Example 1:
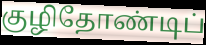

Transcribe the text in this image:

குழிதோண்டிப்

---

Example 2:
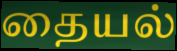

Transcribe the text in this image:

தையல்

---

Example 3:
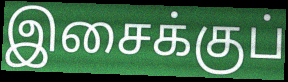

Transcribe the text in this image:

இசைக்குப்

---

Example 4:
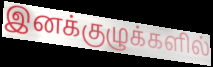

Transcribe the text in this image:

இனக்குழுக்களில்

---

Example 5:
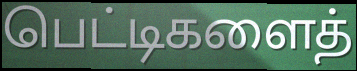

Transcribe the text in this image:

பெட்டிகளைத்